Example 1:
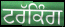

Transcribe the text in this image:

ਟਰੱਕਿੰਗ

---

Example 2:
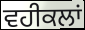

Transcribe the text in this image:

ਵਹੀਕਲਾਂ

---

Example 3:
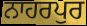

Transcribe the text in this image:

ਨਾਹਰਪੁਰ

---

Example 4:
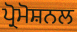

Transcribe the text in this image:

ਪ੍ਰੋਮੋਸ਼ਨਲ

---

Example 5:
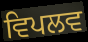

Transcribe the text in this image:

ਵਿਪਲਵ